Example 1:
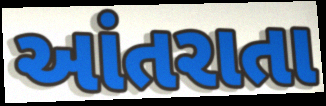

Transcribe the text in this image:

આંતરાતા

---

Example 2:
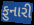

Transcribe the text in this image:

ફુનારી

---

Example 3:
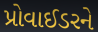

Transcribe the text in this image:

પ્રોવાઈડરને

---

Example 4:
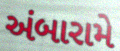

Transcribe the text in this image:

અંબારામે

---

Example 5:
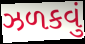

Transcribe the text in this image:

ઝળકવું